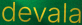
devala